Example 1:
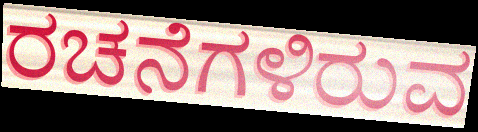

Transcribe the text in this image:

ರಚನೆಗಳಿರುವ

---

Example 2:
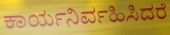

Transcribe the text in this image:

ಕಾರ್ಯನಿರ್ವಹಿಸಿದರೆ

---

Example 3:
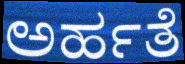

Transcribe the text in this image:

ಅರ್ಹತೆ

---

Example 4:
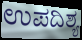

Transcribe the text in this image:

ಉಪದಿಶ್ಯ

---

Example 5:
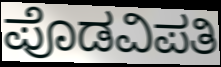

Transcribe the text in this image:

ಪೊಡವಿಪತಿ